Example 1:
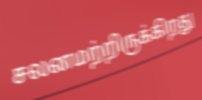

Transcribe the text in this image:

சலனமற்றிருக்கிறது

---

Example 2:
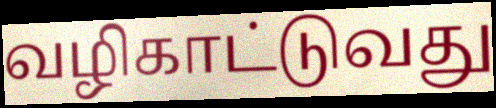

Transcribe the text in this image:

வழிகாட்டுவது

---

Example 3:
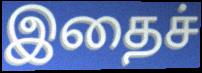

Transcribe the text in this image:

இதைச்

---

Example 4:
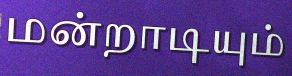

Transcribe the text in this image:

மன்றாடியும்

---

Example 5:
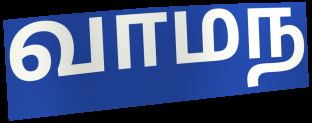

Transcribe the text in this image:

வாமந